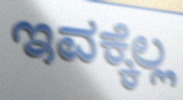
ಇವಕ್ಕೆಲ್ಲ